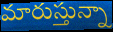
మారుస్తున్నా